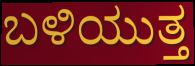
ಬಳಿಯುತ್ತ